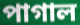
পাগাল